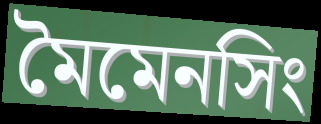
মৈমেনসিং